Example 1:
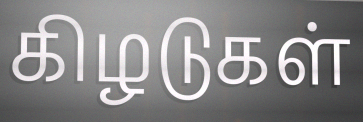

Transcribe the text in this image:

கிழடுகள்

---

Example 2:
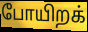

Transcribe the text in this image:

போயிறக்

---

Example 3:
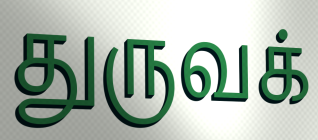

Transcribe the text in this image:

துருவக்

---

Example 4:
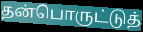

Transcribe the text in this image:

தன்பொருட்டுத்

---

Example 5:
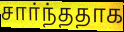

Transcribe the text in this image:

சார்ந்ததாக